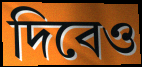
দিবেও